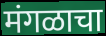
मंगळाचा